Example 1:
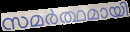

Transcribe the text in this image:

സമർത്ഥമായി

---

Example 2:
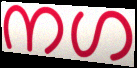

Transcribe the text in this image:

നഗ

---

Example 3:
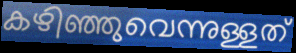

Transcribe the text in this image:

കഴിഞ്ഞുവെന്നുള്ളത്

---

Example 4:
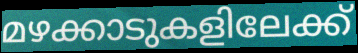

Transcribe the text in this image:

മഴക്കാടുകളിലേക്ക്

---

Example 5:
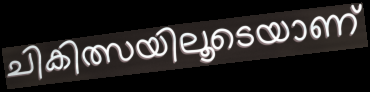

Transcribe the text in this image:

ചികിത്സയിലൂടെയാണ്